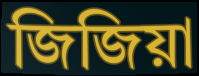
জিজিয়া